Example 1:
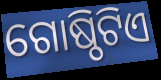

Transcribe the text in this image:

ଗୋଷ୍ଠିଟିଏ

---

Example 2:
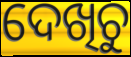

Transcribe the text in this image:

ଦେଖିଚୁ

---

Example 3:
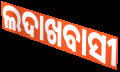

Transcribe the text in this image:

ଲଦାଖବାସୀ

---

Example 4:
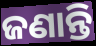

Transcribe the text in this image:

ଜଣାନ୍ତି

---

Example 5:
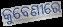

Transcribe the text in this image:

କୁବେଣୀରେ